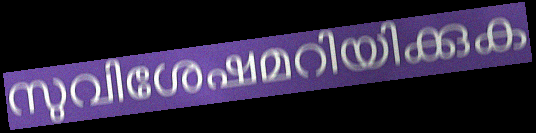
സുവിശേഷമറിയിക്കുക